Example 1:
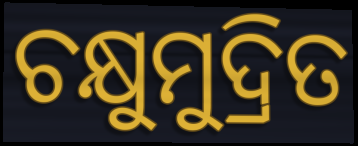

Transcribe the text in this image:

ଚକ୍ଷୁମୁଦ୍ରିତ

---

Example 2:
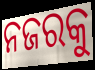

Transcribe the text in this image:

ନଜରକୁ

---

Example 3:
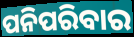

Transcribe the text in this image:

ପନିପରିବାର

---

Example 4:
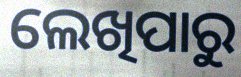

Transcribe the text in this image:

ଲେଖିପାରୁ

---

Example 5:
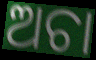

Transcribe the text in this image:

ଅଚା